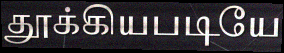
தூக்கியபடியே